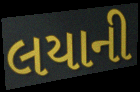
લયાની